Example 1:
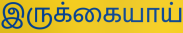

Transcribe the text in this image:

இருக்கையாய்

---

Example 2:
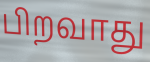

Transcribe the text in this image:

பிறவாது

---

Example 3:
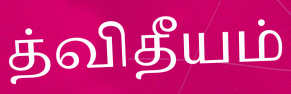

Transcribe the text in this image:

த்விதீயம்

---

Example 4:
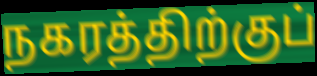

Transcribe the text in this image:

நகரத்திற்குப்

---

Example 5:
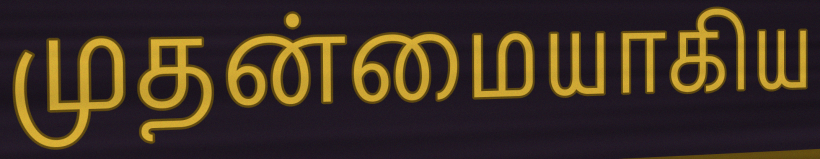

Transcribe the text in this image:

முதன்மையாகிய